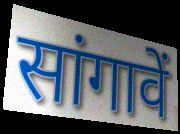
सांगावें